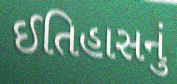
ઈતિહાસનું